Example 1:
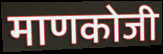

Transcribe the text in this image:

माणकोजी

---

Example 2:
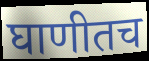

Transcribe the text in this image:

घाणीतच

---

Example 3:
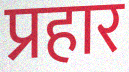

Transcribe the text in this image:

प्रहार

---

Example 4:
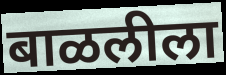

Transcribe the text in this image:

बाळलीला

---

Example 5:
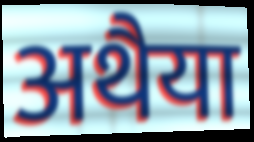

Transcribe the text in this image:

अथैया